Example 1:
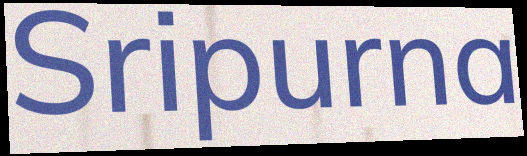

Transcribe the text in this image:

Sripurna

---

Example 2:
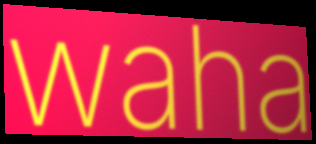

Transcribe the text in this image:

waha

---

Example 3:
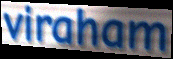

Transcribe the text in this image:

viraham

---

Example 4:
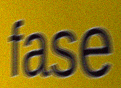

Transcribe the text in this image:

fase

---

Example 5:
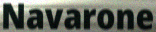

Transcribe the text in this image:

Navarone